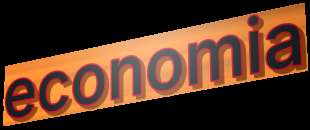
economia